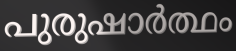
പുരുഷാർത്ഥം